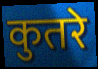
कुतरे